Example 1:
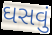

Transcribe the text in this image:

ઘસવું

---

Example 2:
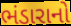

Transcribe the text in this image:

ભંડારાનો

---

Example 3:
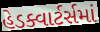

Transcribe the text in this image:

હેડક્વાર્ટર્સમાં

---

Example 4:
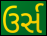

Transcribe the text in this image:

ઉર્સ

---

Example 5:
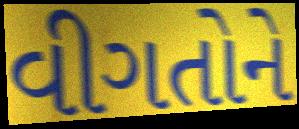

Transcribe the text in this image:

વીગતોને